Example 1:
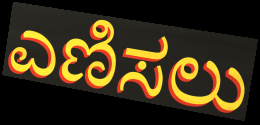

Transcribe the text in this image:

ಎಣಿಸಲು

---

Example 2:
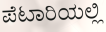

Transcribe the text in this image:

ಪೆಟಾರಿಯಲ್ಲಿ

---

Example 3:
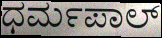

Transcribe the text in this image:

ಧರ್ಮಪಾಲ್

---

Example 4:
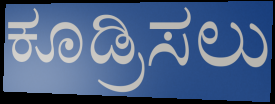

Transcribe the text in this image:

ಕೂಡ್ರಿಸಲು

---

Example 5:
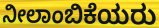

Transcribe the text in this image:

ನೀಲಾಂಬಿಕೆಯರು